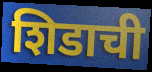
शिडाची